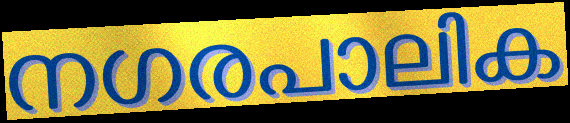
നഗരപാലിക